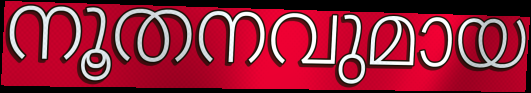
നൂതനവുമായ